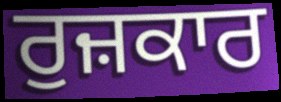
ਰੁਜ਼ਕਾਰ